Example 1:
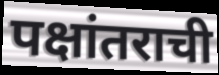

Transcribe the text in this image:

पक्षांतराची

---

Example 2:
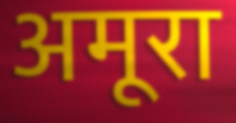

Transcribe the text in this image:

अमूरा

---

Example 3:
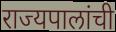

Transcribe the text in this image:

राज्यपालांची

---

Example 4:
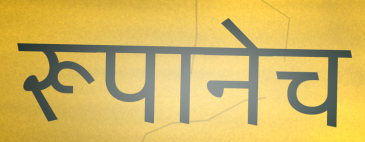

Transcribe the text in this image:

रूपानेच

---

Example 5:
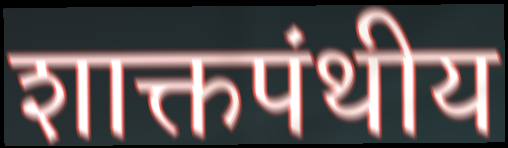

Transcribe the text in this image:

शाक्तपंथीय